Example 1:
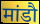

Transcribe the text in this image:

मांडौ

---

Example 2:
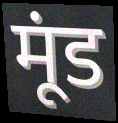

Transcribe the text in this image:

मूंड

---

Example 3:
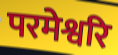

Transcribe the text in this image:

परमेश्वरि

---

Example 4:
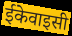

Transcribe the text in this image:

ईकेवाइसी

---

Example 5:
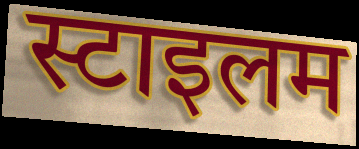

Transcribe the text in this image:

स्टाइलम